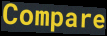
Compare